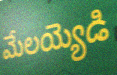
మేలయ్యెడి